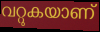
വറ്റുകയാണ്